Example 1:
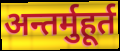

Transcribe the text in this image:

अन्तर्मुहूर्त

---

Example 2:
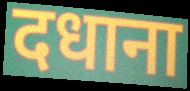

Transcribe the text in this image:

दधाना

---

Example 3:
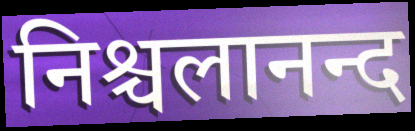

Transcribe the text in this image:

निश्चलानन्द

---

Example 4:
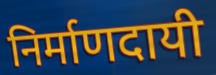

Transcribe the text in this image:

निर्माणदायी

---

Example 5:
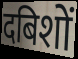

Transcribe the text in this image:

दबिशों